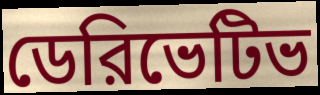
ডেরিভেটিভ